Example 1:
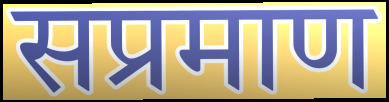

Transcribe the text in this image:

सप्रमाण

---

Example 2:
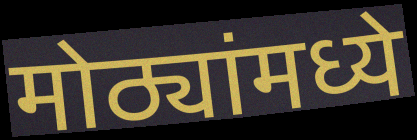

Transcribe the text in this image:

मोठ्यांमध्ये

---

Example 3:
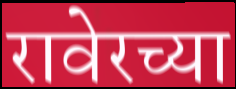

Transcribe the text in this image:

रावेरच्या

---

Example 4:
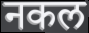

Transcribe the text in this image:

नकल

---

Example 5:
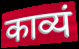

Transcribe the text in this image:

काव्यं